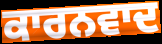
ਕਾਰਨਵਾਦ